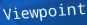
Viewpoint